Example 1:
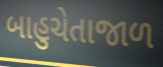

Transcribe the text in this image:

બાહુચેતાજાળ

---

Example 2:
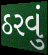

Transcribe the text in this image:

ઠરવું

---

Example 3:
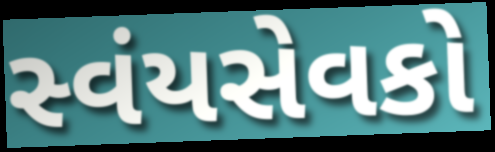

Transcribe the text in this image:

સ્વંયસેવકો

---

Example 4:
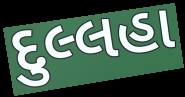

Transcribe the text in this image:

દુલ્લહા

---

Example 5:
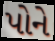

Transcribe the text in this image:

પોને